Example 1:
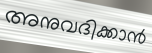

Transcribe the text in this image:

അനുവദിക്കാൻ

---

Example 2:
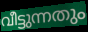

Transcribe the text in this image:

വീട്ടുന്നതും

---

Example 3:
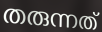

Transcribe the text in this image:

തരുന്നത്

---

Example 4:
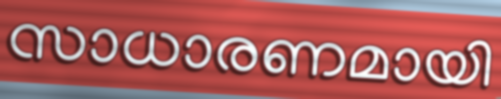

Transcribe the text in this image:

സാധാരണമായി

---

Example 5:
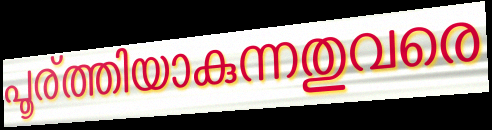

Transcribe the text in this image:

പൂര്ത്തിയാകുന്നതുവരെ